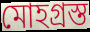
মোহগ্রস্ত